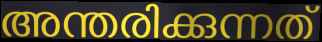
അന്തരിക്കുന്നത്